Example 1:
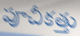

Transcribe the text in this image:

పూచీకత్తు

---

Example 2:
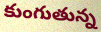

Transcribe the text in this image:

కుంగుతున్న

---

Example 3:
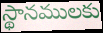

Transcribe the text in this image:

స్థానములకు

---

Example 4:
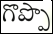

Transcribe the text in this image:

గొప్పొ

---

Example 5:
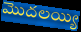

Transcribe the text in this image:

మొదలయ్యి